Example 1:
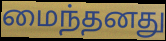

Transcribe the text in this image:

மைந்தனது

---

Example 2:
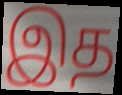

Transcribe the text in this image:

இத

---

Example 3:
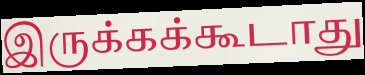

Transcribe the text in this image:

இருக்கக்கூடாது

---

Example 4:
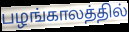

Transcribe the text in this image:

பழங்காலத்தில்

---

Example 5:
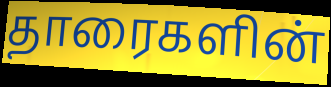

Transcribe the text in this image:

தாரைகளின்